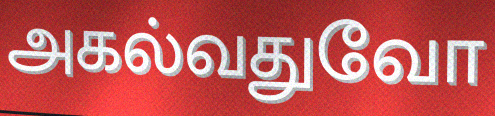
அகல்வதுவோ